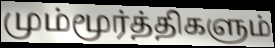
மும்மூர்த்திகளும்